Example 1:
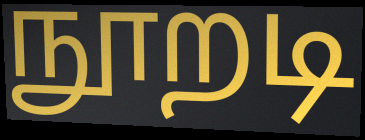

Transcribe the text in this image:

நூறடி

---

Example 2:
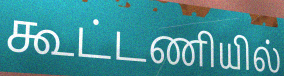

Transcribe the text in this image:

கூட்டணியில்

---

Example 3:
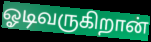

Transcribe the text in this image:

ஓடிவருகிறான்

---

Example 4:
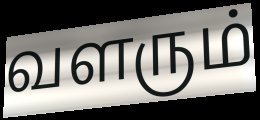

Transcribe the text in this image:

வளரும்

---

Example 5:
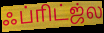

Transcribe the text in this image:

ஃப்ரிட்ஜ்ல